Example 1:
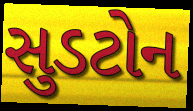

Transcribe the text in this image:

સુડટોન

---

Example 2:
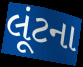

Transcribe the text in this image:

લૂંટના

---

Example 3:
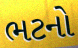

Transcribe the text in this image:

ભટનો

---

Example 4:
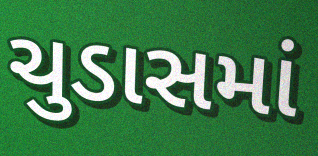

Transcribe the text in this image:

ચુડાસમાં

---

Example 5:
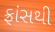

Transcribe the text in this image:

ફ્રાંસથી